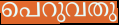
പെറുവതു